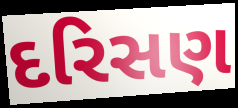
દરિસણ